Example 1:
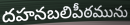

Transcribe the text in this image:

దహనబలిపీఠమును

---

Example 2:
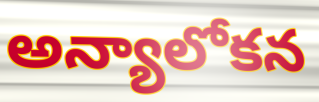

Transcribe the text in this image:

అన్యాలోకన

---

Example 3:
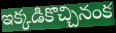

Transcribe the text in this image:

ఇక్కడికొచ్చినంక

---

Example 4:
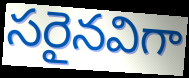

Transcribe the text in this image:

సరైనవిగా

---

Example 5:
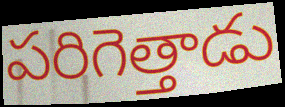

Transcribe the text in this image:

పరిగెత్తాడు